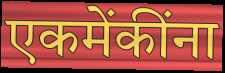
एकमेंकींना